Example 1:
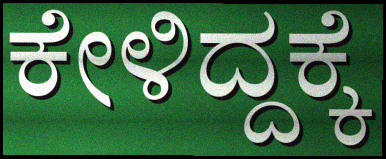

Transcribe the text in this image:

ಕೇಳಿದ್ದಕ್ಕೆ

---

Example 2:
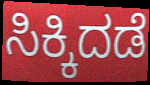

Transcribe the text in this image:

ಸಿಕ್ಕಿದಡೆ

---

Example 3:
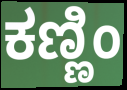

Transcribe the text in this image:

ಕಣ್ಣಿಂ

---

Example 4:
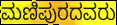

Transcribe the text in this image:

ಮಣಿಪುರದವರು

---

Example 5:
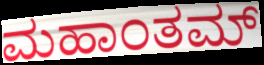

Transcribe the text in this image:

ಮಹಾಂತಮ್